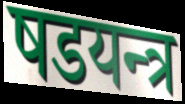
षडयन्त्र